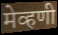
मेव्हणी